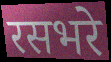
रसभरे